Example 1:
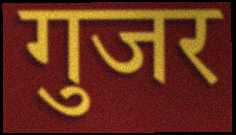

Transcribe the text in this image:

गुजर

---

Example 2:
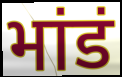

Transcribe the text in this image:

भांडं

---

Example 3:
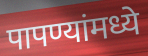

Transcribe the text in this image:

पापण्यांमध्ये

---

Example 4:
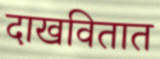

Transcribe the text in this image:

दाखवितात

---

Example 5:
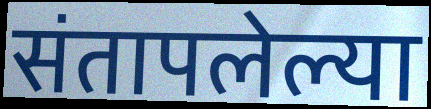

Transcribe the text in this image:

संतापलेल्या